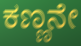
ಕಣ್ಣನೇ